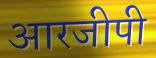
आरजीपी